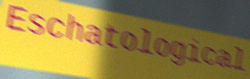
Eschatological